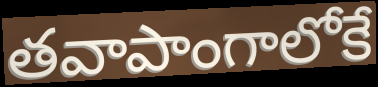
తవాపాంగాలోకే